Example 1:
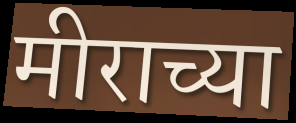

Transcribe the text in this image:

मीराच्या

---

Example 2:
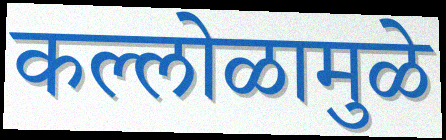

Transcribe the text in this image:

कल्लोळामुळे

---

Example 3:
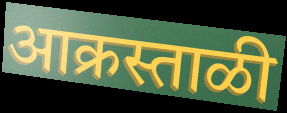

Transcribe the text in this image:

आक्रस्ताळी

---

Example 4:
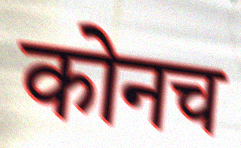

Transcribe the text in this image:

कोनच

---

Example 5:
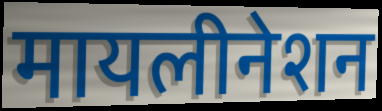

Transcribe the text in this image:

मायलीनेशन